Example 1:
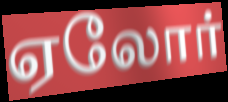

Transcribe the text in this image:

ஏலோர்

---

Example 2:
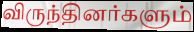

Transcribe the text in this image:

விருந்தினர்களும்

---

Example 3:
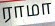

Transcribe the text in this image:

ராமா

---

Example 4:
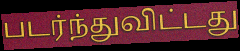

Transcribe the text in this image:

படர்ந்துவிட்டது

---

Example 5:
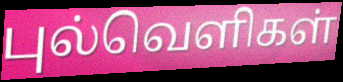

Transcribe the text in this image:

புல்வெளிகள்